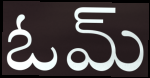
ఓమ్